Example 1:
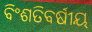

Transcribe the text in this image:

ବିଂଶତିବର୍ଷୀୟ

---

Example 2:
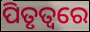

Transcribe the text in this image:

ପିତୃତ୍ୱରେ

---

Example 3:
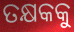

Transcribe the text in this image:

ତକ୍ଷକକୁ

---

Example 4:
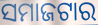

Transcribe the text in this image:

ସମାଜଟାର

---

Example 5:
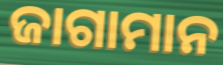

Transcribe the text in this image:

ଜାଗାମାନ